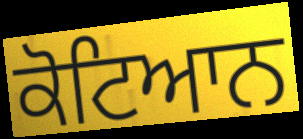
ਕੋਟਿਆਨ